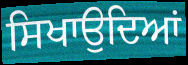
ਸਿਖਾਉਦਿਆਂ